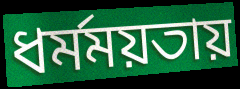
ধর্মময়তায়